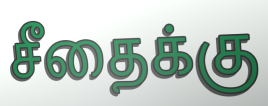
சீதைக்கு